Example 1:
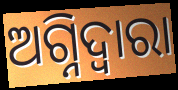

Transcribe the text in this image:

ଅଗ୍ନିଦ୍ଵାରା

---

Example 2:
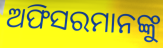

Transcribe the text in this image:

ଅଫିସରମାନଙ୍କୁ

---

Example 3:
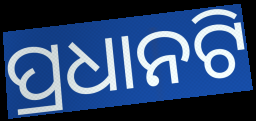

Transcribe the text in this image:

ପ୍ରଧାନଟି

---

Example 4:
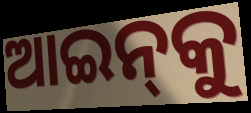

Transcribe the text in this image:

ଆଇନ୍‍କୁ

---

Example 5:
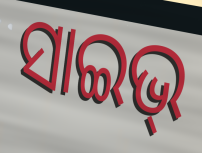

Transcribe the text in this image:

ସାଇଭ୍